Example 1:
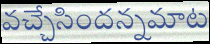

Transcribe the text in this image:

వచ్చేసిందన్నమాట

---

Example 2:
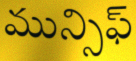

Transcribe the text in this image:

మున్సిఫ్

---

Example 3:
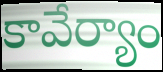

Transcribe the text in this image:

కావేర్యాం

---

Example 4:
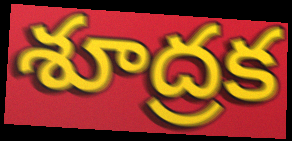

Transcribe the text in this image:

శూద్రక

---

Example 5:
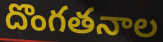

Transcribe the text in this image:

దొంగతనాల